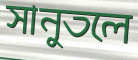
সানুতলে